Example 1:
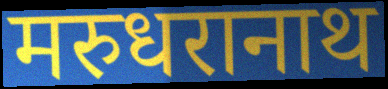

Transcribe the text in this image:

मरुधरानाथ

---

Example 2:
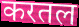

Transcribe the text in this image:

करतल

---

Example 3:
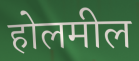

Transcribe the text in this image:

होलमील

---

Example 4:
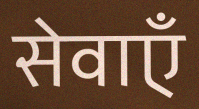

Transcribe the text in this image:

सेवाएँ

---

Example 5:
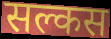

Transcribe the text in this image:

सल्कस